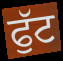
ਫੁੱਟ